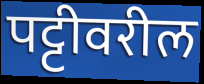
पट्टीवरील